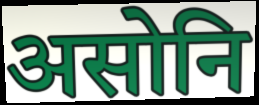
असोनि